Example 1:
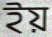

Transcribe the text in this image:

ইয়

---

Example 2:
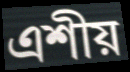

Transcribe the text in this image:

এশীয়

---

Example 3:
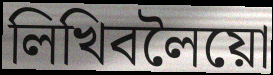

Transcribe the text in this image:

লিখিবলৈয়ো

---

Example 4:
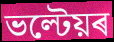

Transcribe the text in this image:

ভল্টেয়ৰ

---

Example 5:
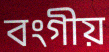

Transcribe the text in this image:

বংগীয়